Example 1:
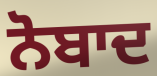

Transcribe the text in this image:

ਨੋਬਾਦ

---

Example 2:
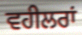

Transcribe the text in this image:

ਵਹੀਲਰਾਂ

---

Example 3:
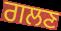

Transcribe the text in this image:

ਗਲਣ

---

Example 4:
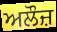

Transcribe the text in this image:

ਅਲੌਜ਼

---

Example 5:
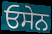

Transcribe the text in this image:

ਓਸੇਨ